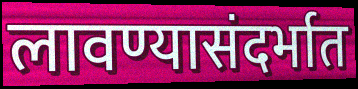
लावण्यासंदर्भात